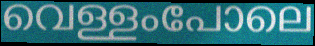
വെള്ളംപോലെ